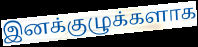
இனக்குழுக்களாக